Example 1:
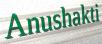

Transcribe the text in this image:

Anushakti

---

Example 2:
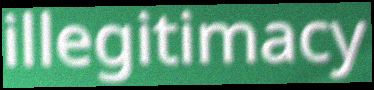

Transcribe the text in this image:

illegitimacy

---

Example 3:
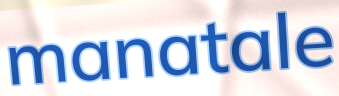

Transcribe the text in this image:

manatale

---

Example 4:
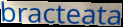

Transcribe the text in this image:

bracteata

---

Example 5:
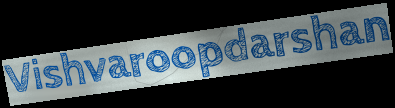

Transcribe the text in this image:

Vishvaroopdarshan